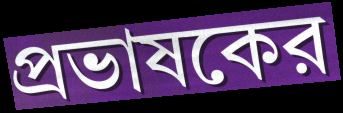
প্রভাষকের